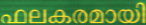
ഫലകരമായി